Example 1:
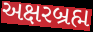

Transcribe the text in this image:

અક્ષરબ્રહ્મ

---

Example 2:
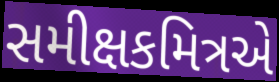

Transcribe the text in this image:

સમીક્ષકમિત્રએ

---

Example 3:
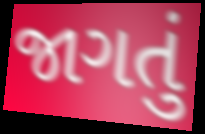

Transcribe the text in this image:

જાગતું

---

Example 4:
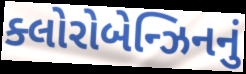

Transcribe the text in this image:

ક્લોરોબેન્ઝિનનું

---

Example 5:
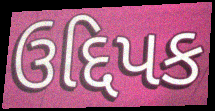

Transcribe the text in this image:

ઉદ્દિપક